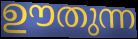
ഊതുന്ന